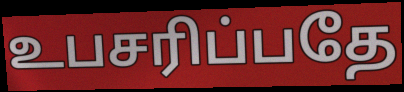
உபசரிப்பதே